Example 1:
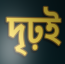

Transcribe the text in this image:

দৃঢ়ই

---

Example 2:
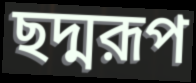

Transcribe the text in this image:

ছদ্মরূপ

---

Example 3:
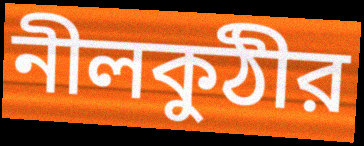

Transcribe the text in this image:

নীলকুঠীর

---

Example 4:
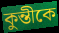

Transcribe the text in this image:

কুন্তীকে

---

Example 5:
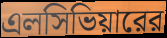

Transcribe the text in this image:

এলসিভিয়ারের